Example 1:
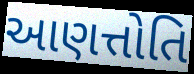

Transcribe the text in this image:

આણત્તોતિ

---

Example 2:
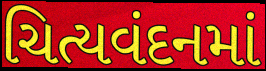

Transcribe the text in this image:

ચિત્યવંદનમાં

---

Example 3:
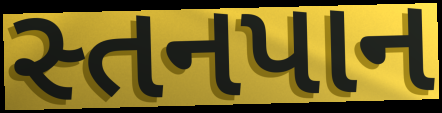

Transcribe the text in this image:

સ્તનપાન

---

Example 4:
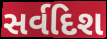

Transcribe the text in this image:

સર્વદિશ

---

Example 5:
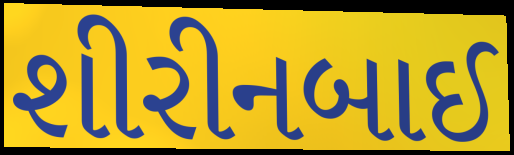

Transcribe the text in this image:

શીરીનબાઈ